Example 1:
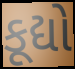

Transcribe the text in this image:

કૂદ્યો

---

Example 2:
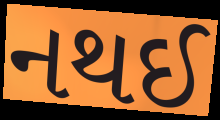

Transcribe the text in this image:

નથઈ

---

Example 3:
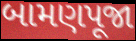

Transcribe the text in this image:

બામણપૂજા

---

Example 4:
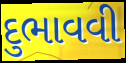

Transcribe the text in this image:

દુભાવવી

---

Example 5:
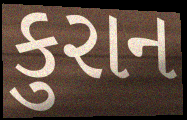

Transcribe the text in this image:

કુરાન